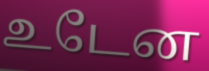
உடேன